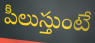
పీలుస్తుంటే